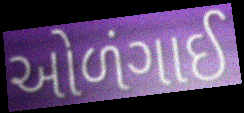
ઓળંગાઈ